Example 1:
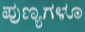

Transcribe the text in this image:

ಪುಣ್ಯಗಳೂ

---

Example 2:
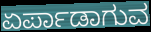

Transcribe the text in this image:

ಏರ್ಪಾಡಾಗುವ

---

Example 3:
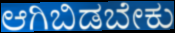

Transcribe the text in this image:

ಆಗಿಬಿಡಬೇಕು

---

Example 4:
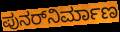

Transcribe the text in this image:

ಪುನರ್‌ನಿರ್ಮಾಣ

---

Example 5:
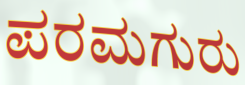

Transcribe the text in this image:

ಪರಮಗುರು